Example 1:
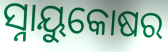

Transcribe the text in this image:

ସ୍ନାୟୁକୋଷର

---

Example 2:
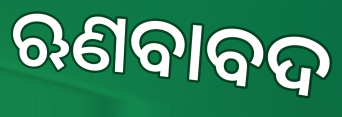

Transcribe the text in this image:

ଋଣବାବଦ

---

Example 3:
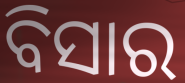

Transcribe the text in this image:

ବିସାର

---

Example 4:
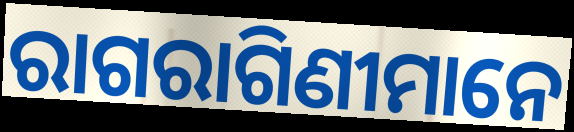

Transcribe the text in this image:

ରାଗରାଗିଣୀମାନେ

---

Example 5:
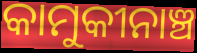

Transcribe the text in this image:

କାମୁକୀନାଞ୍ଚ